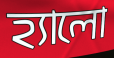
হ্যালো